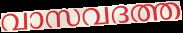
വാസവദത്ത